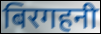
बिरगहनी